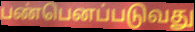
பண்பெனப்படுவது